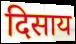
दिसाय